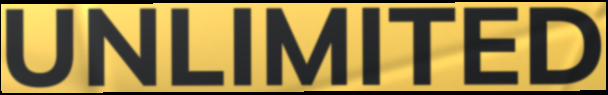
UNLIMITED